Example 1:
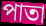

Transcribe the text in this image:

পাতা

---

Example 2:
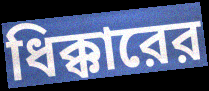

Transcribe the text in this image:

ধিক্কারের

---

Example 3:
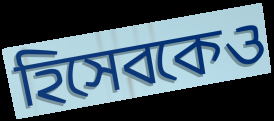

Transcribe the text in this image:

হিসেবকেও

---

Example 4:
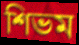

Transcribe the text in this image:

শিভম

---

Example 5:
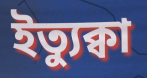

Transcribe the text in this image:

ইত্যুক্বা